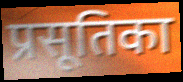
प्रसूतिका